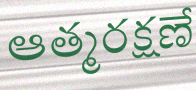
ఆత్మరక్షణే